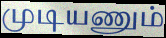
முடியணும்